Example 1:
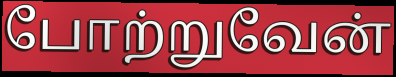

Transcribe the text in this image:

போற்றுவேன்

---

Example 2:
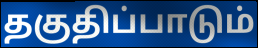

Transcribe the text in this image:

தகுதிப்பாடும்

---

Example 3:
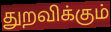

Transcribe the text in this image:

துறவிக்கும்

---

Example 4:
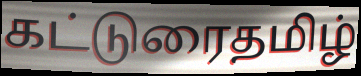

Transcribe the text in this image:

கட்டுரைதமிழ்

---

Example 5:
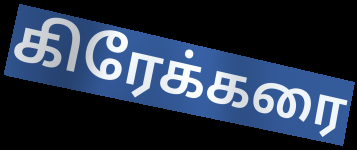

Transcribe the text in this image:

கிரேக்கரை